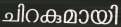
ചിറകുമായി